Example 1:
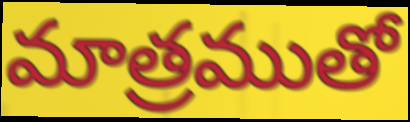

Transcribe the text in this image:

మాత్రముతో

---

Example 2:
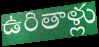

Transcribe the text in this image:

ఉరితాళ్లు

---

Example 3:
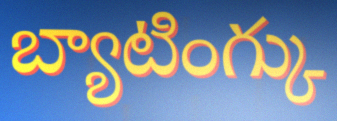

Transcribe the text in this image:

బ్యాటింగ్కు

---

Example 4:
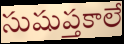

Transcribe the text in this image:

సుషుప్తకాలే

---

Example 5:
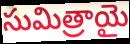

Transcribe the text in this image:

సుమిత్రాయై